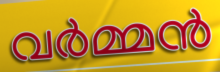
വർമ്മൻ